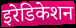
इरेडिकेशन